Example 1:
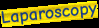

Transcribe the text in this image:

Laparoscopy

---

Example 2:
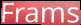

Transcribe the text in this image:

Frams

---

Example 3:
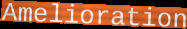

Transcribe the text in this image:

Amelioration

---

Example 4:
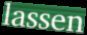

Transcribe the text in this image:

lassen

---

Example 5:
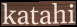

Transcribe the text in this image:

katahi